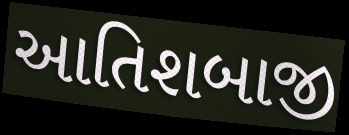
આતિશબાજી